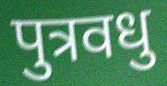
पुत्रवधु